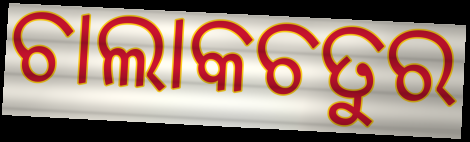
ଚାଲାକଚତୁର